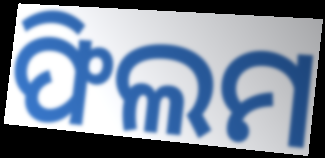
ଫିଲମ